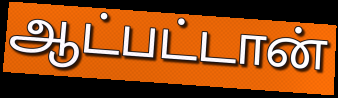
ஆட்பட்டான்